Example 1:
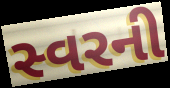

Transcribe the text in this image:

સ્વરની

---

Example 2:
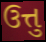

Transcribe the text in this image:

ઉત્તુ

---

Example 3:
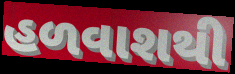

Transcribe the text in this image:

હળવાશથી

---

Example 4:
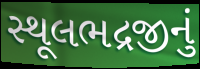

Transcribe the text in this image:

સ્થૂલભદ્રજીનું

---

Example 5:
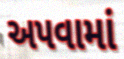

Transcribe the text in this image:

અપવામાં